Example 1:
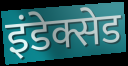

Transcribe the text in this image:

इंडेक्सेड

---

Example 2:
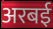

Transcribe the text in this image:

अरबई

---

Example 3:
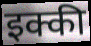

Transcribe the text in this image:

इक्की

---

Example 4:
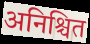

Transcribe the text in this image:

अनिश्चित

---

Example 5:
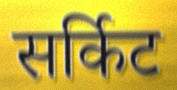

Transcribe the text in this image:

सर्किट